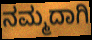
ನಮ್ಮದಾಗಿ